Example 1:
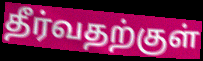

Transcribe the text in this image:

தீர்வதற்குள்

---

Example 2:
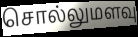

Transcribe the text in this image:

சொல்லுமளவு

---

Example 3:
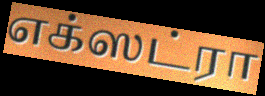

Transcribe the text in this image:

எக்ஸட்ரா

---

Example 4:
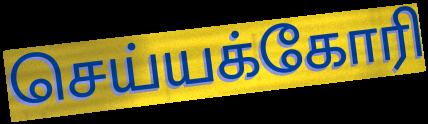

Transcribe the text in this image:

செய்யக்கோரி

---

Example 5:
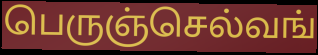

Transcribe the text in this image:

பெருஞ்செல்வங்